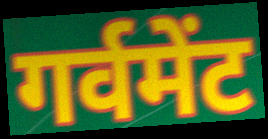
गर्वमेंट